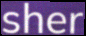
sher